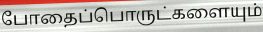
போதைப்பொருட்களையும்